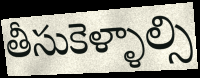
తీసుకెళ్ళాల్సి